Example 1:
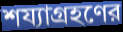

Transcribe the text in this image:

শয্যাগ্রহণের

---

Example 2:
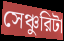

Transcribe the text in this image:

সেঞ্চুরিটা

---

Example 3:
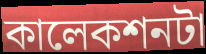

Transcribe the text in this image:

কালেকশনটা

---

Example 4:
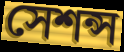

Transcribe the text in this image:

সেশন্স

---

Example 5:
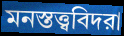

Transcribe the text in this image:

মনস্তত্ত্ববিদরা